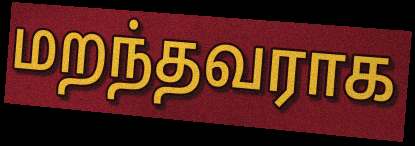
மறந்தவராக